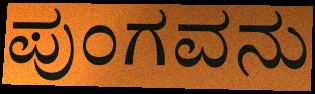
ಪುಂಗವನು